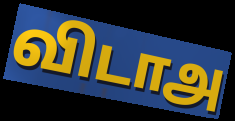
விடாஅ